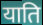
याति